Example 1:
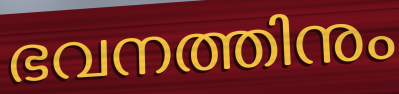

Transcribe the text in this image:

ഭവനത്തിനും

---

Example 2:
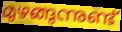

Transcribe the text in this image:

മുഴങ്ങുന്നുണ്ട്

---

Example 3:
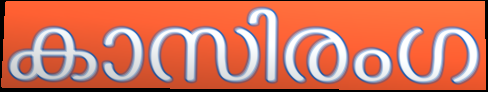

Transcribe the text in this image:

കാസിരംഗ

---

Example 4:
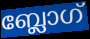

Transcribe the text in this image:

ബ്ലോഗ്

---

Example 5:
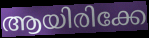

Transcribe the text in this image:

ആയിരിക്കേ